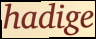
hadige